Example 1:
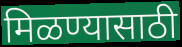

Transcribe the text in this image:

मिळण्यासाठी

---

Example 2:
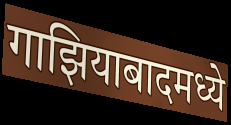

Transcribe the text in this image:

गाझियाबादमध्ये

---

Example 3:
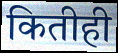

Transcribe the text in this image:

कितीही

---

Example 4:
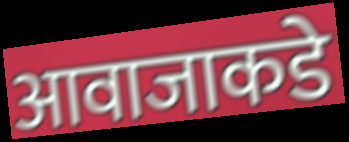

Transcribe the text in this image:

आवाजाकडे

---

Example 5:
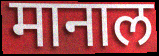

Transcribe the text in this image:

मानाल